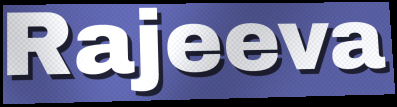
Rajeeva